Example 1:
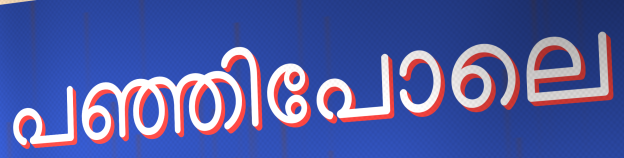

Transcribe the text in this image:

പഞ്ഞിപോലെ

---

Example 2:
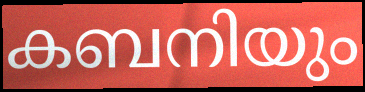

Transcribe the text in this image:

കബനിയും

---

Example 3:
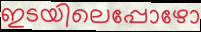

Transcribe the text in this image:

ഇടയിലെപ്പോഴോ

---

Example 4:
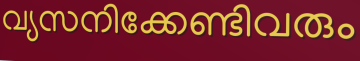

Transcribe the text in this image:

വ്യസനിക്കേണ്ടിവരും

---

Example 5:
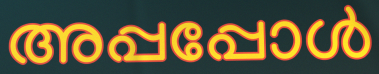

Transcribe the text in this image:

അപ്പപ്പോൾ